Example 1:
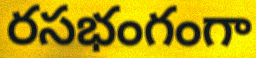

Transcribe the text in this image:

రసభంగంగా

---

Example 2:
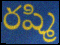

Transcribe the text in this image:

రష్మి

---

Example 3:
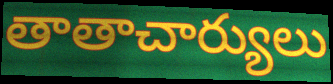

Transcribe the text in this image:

తాతాచార్యులు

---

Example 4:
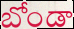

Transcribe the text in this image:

బోండా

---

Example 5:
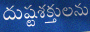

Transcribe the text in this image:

దుష్టశక్తులను